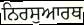
ਨਿਰਸੁਆਰਥ